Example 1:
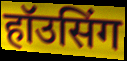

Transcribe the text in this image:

हॉउसिंग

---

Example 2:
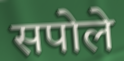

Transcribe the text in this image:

सपोले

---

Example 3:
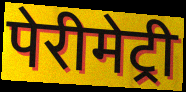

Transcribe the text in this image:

पेरीमेट्री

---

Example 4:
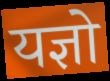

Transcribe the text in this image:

यज्ञो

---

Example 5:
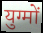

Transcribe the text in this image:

युग्मों